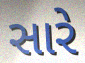
સારે